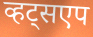
व्हट्सएप